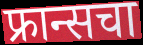
फ्रान्सचा